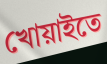
খোয়াইতে